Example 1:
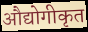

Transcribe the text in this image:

औद्योगीकृत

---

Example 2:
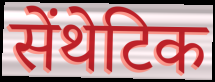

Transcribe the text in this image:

सेंथेटिक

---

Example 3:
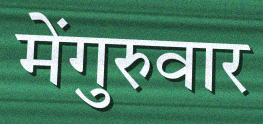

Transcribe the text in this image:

मेंगुरुवार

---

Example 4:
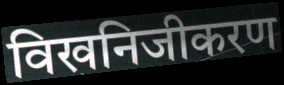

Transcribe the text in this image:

विखनिजीकरण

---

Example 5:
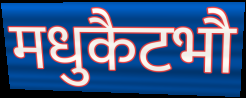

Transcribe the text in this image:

मधुकैटभौ